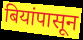
बियांपासून